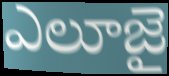
ఎలూజై